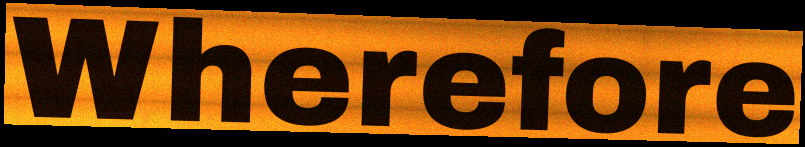
Wherefore